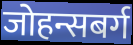
जोहन्सबर्ग